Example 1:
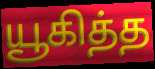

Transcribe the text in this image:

யூகித்த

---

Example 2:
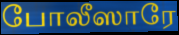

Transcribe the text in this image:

போலீஸாரே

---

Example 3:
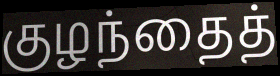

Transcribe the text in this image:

குழந்தைத்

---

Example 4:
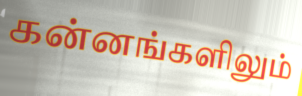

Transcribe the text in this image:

கன்னங்களிலும்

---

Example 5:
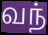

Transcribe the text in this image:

வந்